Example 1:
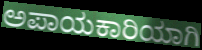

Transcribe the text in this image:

ಅಪಾಯಕಾರಿಯಾಗಿ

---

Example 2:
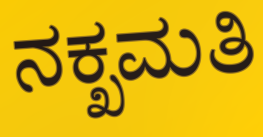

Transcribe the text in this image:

ನಕ್ಖಮತಿ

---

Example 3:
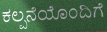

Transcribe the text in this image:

ಕಲ್ಪನೆಯೊಂದಿಗೆ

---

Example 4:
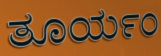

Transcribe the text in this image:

ತೂರ್ಯಂ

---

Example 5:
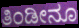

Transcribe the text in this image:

ತಿಂಡೀನೂ